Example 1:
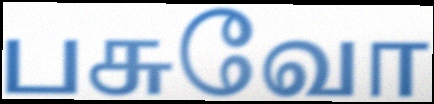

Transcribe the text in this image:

பசுவோ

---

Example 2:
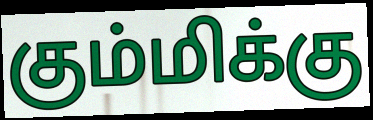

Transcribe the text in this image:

கும்மிக்கு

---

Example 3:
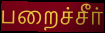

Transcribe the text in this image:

பறைச்சீர்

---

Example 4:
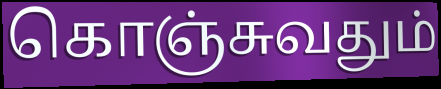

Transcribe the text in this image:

கொஞ்சுவதும்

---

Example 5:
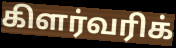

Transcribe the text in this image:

கிளர்வரிக்